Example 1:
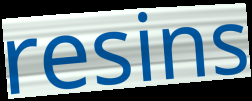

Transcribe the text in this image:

resins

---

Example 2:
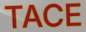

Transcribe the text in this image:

TACE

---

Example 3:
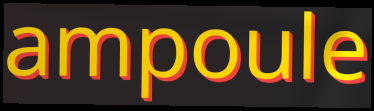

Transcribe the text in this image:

ampoule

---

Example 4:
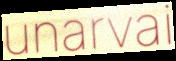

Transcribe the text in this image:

unarvai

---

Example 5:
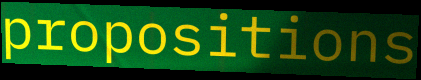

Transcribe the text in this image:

propositions